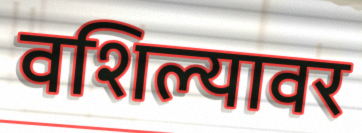
वशिल्यावर